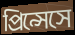
প্রিন্সেসে